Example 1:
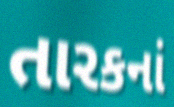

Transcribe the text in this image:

તારકનાં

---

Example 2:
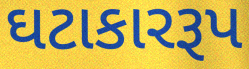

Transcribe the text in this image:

ઘટાકારરૂપ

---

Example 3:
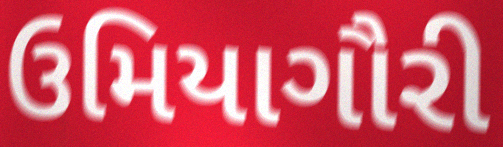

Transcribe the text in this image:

ઉમિયાગૌરી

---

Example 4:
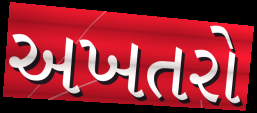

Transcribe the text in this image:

અખતરો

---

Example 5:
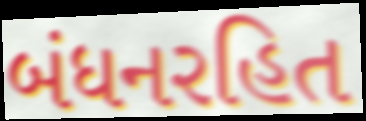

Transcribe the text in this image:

બંધનરહિત